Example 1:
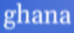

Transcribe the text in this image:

ghana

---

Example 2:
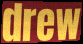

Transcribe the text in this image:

drew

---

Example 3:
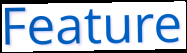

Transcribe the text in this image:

Feature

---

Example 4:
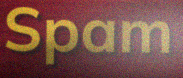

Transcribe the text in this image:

Spam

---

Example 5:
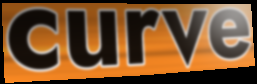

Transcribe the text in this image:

curve